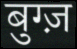
बुग्ज़